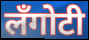
लँगोटी